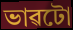
ভাৱটো